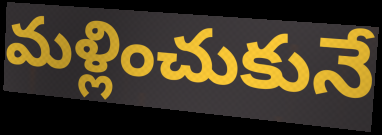
మళ్లించుకునే